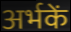
अर्भकें